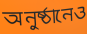
অনুষ্ঠানেও